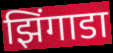
झिंगाडा